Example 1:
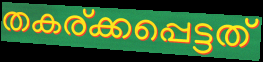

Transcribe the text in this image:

തകര്ക്കപ്പെട്ടത്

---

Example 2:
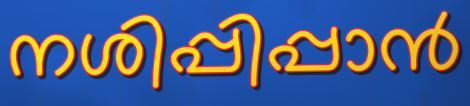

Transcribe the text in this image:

നശിപ്പിപ്പാൻ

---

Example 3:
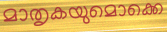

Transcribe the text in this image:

മാതൃകയുമൊക്കെ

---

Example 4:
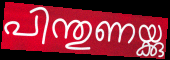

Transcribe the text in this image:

പിന്തുണയ്ക്കു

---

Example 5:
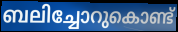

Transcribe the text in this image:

ബലിച്ചോറുകൊണ്ട്